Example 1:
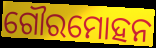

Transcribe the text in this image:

ଗୌରମୋହନ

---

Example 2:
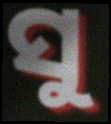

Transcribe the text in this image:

ସୁ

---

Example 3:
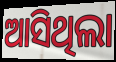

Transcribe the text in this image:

ଆସିଥିଲା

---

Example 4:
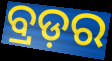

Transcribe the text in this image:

ବ୍ରଡ଼ର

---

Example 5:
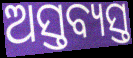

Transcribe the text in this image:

ଅସ୍ତବ୍ୟସ୍ତ